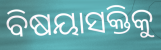
ବିଷୟାସକ୍ତିକୁ